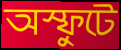
অস্ফুটে